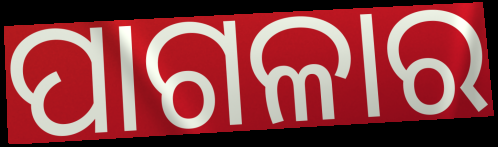
ପାଗଳାର